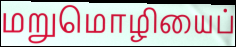
மறுமொழியைப்